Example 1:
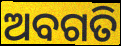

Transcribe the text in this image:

ଅବଗତି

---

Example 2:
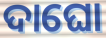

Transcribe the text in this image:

ଦାଘୋ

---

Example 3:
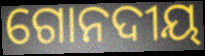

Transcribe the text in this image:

ଗୋନଦୀୟ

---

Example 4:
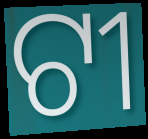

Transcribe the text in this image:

ଟୀ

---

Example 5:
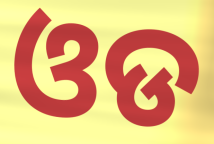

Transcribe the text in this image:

ଓଡ